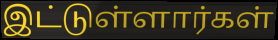
இட்டுள்ளார்கள்